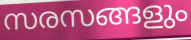
സരസങ്ങളും